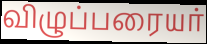
விழுப்பரையர்